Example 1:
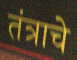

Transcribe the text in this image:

तंत्राचे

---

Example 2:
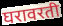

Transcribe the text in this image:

घरावरती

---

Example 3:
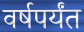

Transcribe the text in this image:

वर्षपर्यंत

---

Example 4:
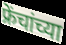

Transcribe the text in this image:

फ्रेंचांच्या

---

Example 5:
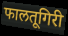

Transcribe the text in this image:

फालतूगिरी